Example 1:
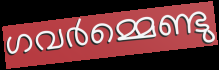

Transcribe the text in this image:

ഗവർമ്മെണ്ടു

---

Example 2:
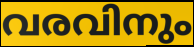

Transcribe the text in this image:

വരവിനും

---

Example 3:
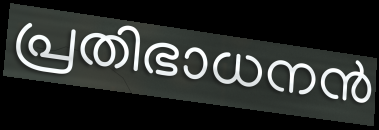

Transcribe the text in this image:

പ്രതിഭാധനൻ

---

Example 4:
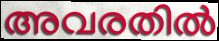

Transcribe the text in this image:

അവരതിൽ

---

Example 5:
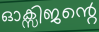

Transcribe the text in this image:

ഓക്സിജന്റെ